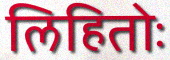
लिहितोः